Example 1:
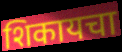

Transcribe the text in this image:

शिकायचा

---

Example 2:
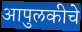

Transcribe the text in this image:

आपुलकीचे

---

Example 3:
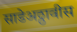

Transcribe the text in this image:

साडेअठ्ठावीस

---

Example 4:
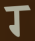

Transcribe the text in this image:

ग्‍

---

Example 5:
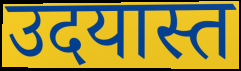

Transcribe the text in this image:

उदयास्त